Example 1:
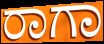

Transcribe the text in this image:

ರಾಗಾ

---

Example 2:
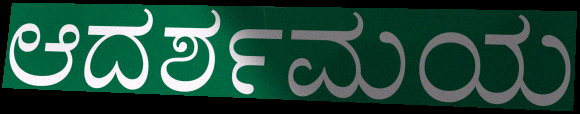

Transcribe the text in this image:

ಆದರ್ಶಮಯ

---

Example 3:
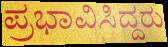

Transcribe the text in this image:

ಪ್ರಭಾವಿಸಿದ್ದರು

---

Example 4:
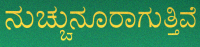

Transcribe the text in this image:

ನುಚ್ಚುನೂರಾಗುತ್ತಿವೆ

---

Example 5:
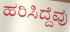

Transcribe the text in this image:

ಹರಿಸಿದ್ದೆವು